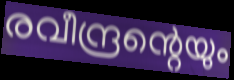
രവീന്ദ്രന്റെയും